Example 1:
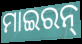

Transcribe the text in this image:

ମାଇରନ୍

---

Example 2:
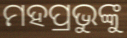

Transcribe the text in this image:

ମହପ୍ରଭୁଙ୍କୁ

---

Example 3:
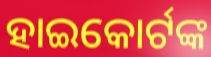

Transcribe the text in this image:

ହାଇକୋର୍ଟଙ୍କ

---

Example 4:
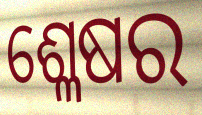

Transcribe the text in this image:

ଶ୍ଳେଷର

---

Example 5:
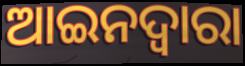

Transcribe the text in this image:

ଆଇନଦ୍ଵାରା